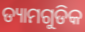
ଡ୍ୟାମଗୁଡିକ